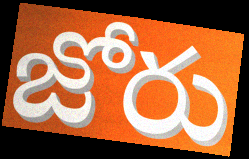
జోరు